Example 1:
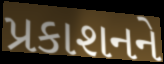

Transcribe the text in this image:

પ્રકાશનને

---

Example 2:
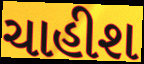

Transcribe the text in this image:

ચાહીશ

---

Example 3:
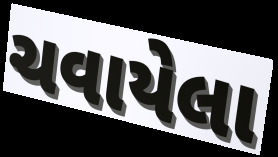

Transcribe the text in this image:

ચવાયેલા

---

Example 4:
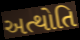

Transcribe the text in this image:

અત્થોતિ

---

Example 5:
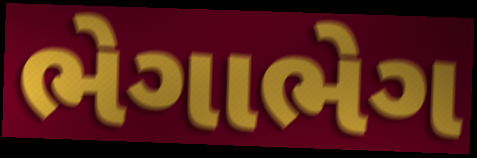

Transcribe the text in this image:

ભેગાભેગ